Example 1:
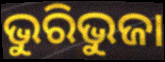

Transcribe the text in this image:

ଭୁରିଭୁଜା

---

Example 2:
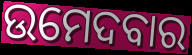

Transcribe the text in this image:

ଉମେଦବାର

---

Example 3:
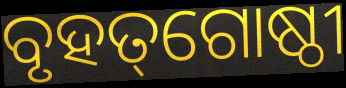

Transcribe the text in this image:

ବୃହତ୍‌ଗୋଷ୍ଠୀ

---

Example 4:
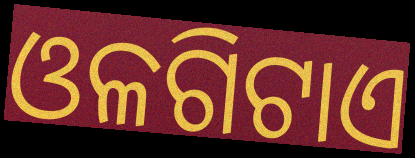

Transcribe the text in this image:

ଓଳଗିଟାଏ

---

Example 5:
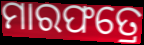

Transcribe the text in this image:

ମାରଫତ୍ରେ